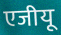
एजीयू